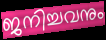
ജനിച്ചവനും